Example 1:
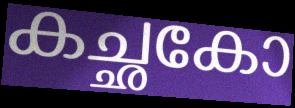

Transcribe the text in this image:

കച്ഛകോ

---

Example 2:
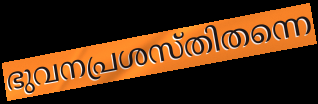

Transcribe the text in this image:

ഭുവനപ്രശസ്തിതന്നെ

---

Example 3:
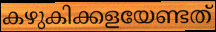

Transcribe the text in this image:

കഴുകിക്കളയേണ്ടത്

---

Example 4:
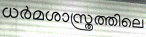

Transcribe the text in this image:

ധർമശാസ്ത്രത്തിലെ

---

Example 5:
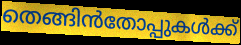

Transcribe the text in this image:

തെങ്ങിൻതോപ്പുകൾക്ക്